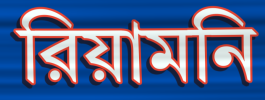
রিয়ামনি